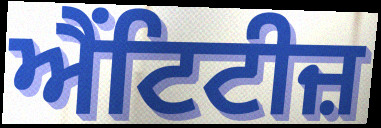
ਐਂਟਿਟੀਜ਼